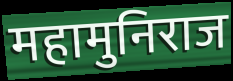
महामुनिराज